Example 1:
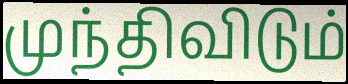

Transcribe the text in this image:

முந்திவிடும்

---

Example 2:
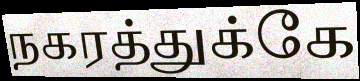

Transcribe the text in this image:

நகரத்துக்கே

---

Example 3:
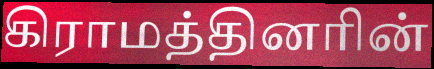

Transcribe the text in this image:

கிராமத்தினரின்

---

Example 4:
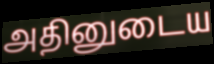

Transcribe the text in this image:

அதினுடைய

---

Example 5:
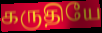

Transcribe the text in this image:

கருதியே